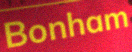
Bonham